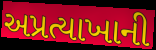
અપ્રત્યાખાની